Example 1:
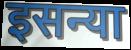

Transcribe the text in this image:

इसन्या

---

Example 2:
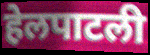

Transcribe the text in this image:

हेलपाटली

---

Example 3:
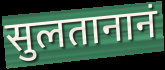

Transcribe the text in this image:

सुलतानानं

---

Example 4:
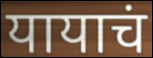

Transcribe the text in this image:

यायाचं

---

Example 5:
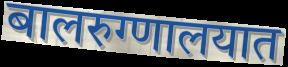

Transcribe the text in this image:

बालरुग्णालयात